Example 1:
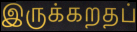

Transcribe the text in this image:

இருக்கறதப்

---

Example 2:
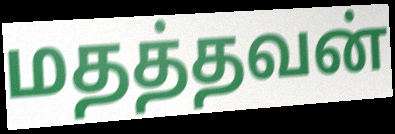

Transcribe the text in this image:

மதத்தவன்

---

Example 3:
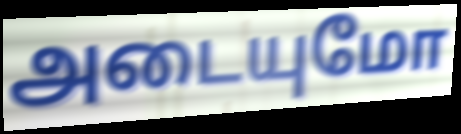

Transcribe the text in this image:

அடையுமோ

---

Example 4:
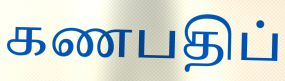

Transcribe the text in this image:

கணபதிப்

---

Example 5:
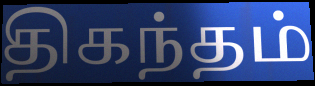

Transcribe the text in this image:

திகந்தம்